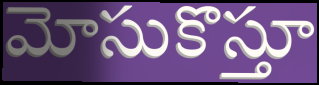
మోసుకొస్తూ